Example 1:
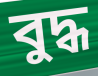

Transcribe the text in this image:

বুদ্ধ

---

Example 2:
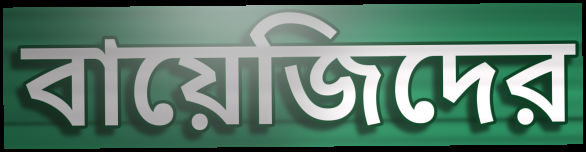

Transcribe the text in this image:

বায়েজিদের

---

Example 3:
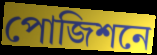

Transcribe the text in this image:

পোজিশনে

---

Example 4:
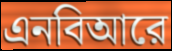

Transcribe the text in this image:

এনবিআরে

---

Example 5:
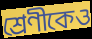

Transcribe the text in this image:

শ্রেণীকেও